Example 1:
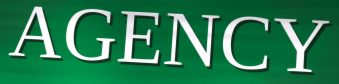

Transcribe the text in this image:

AGENCY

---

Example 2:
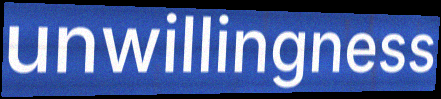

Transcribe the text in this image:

unwillingness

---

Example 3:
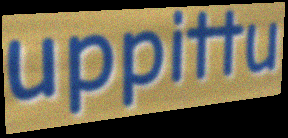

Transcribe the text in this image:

uppittu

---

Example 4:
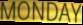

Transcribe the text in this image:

MONDAY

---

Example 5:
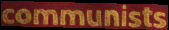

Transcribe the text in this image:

communists